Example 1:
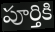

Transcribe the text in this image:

పూర్తికి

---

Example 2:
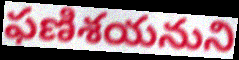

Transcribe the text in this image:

ఫణిశయనుని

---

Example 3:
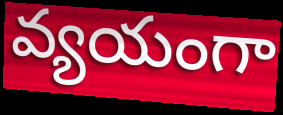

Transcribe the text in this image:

వ్యయంగా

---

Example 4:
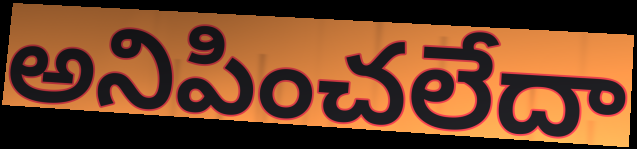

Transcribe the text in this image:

అనిపించలేదా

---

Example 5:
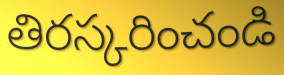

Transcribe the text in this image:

తిరస్కరించండి